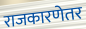
राजकारणेतर